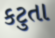
કટુતા